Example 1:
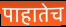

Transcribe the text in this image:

पाहातेच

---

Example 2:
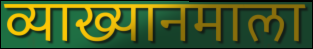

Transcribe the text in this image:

व्याख्यानमाला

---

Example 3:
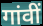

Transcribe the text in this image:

गांवीं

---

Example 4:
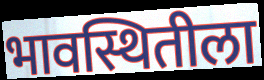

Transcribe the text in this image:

भावस्थितीला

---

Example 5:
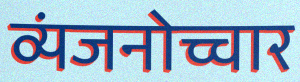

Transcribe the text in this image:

व्यंजनोच्चार